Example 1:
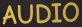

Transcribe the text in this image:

AUDIO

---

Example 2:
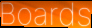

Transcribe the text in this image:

Boards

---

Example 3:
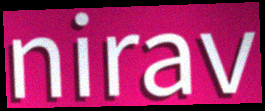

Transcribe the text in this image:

nirav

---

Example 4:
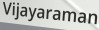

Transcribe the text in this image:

Vijayaraman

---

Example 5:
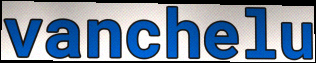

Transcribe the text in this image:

vanchelu